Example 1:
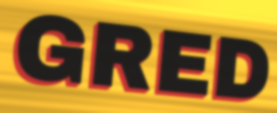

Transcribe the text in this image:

GRED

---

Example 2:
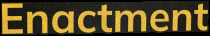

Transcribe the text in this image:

Enactment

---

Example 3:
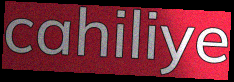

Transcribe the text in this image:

cahiliye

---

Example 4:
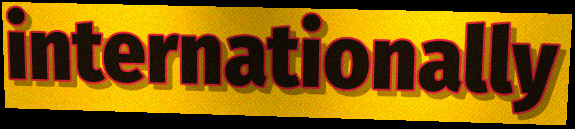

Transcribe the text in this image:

internationally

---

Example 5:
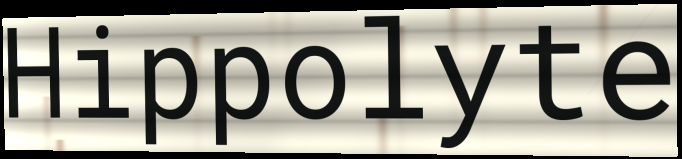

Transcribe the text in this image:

Hippolyte